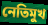
নেতিমুখ